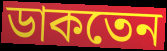
ডাকতেন